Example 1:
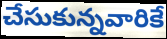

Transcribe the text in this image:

చేసుకున్నవారికే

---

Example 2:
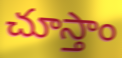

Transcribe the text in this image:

చూస్తాం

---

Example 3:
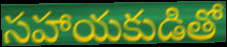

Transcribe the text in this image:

సహాయకుడితో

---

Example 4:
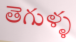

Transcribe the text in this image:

తెగుళ్ళ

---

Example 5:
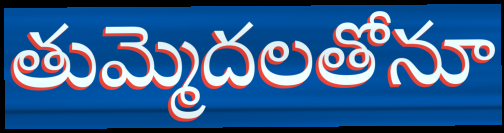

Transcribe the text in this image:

తుమ్మెదలతోనూ